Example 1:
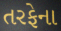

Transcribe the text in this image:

તરફેના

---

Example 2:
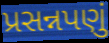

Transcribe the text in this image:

પ્રસન્નપણું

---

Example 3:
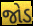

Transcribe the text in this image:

જોડ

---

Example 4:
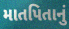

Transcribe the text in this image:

માતપિતાનું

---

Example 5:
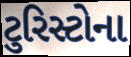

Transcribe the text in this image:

ટુરિસ્ટોના